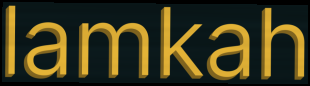
lamkah